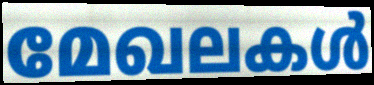
മേഖലകൾ